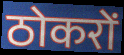
ठोकरों